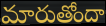
మారుతోందా